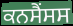
ਕਨਸੈਂਸਸ